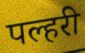
पल्हरी